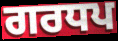
ਗਰਧਪ